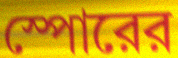
স্পোরের